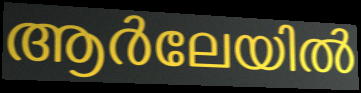
ആർലേയിൽ